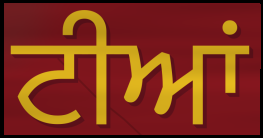
ਟੀਆਂ